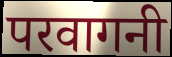
परवागनी